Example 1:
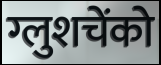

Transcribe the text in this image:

ग्लुशचेंको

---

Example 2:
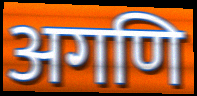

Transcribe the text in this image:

अगणि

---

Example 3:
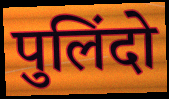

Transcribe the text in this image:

पुलिंदो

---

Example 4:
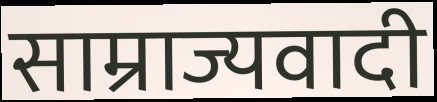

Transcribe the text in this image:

साम्राज्‍यवादी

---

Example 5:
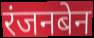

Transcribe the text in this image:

रंजनबेन